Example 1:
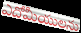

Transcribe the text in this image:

ఎదోమీయులను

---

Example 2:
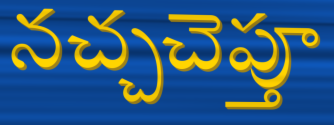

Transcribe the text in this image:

నచ్చచెప్తూ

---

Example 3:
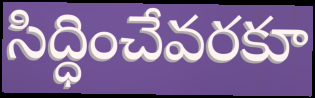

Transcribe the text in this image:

సిద్ధించేవరకూ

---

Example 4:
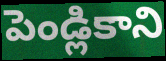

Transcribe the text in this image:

పెండ్లికాని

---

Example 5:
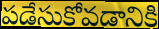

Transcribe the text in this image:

పడేసుకోవడానికి